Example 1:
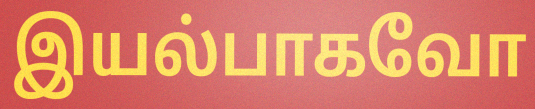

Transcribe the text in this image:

இயல்பாகவோ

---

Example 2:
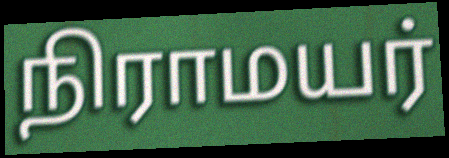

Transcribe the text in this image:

நிராமயர்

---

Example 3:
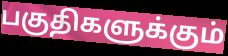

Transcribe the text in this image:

பகுதிகளுக்கும்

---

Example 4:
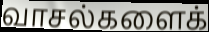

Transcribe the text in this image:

வாசல்களைக்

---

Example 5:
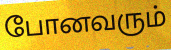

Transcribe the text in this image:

போனவரும்